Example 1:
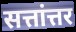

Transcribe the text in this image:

सत्तांत्तर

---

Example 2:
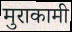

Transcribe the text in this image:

मुराकामी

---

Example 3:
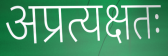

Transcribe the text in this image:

अप्रत्यक्षतः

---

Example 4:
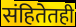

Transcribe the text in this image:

संहितेतही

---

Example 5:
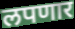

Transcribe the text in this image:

लपणार